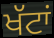
ਖੱਟਾਂ